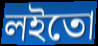
লইতো